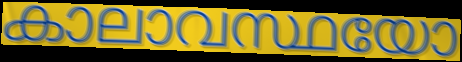
കാലാവസ്ഥയോ